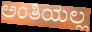
ಅಂತಿಯಲ್ಲ